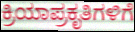
ಕ್ರಿಯಾಪ್ರಕೃತಿಗಳಿಗೆ